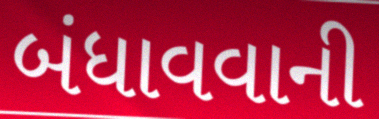
બંધાવવાની